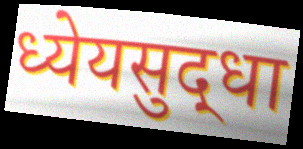
ध्येयसुद्धा